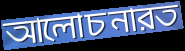
আলোচনারত